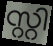
സ്റ്റി